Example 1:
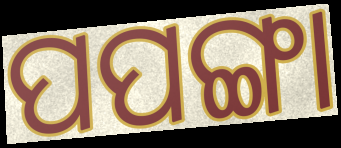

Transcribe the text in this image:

ପପଙ୍ଗା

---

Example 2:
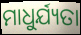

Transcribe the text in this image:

ମାଧୁର୍ଯ୍ୟତା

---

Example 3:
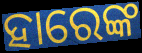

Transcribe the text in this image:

ହାରେଙ୍କ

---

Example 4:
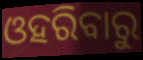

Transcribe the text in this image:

ଓହରିବାରୁ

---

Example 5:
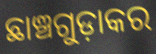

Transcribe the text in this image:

ଛାଞ୍ଚଗୁଡ଼ାକର